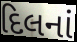
દિલનાં